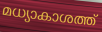
മധ്യാകാശത്ത്